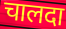
चालदा